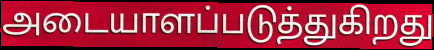
அடையாளப்படுத்துகிறது